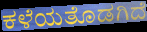
ಕಳೆಯತೊಡಗಿದೆ